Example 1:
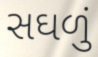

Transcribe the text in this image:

સઘળું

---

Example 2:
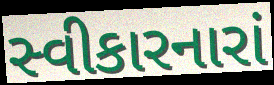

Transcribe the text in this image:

સ્વીકારનારાં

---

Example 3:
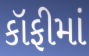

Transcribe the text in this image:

કૉફીમાં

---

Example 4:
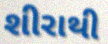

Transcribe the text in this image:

શીરાથી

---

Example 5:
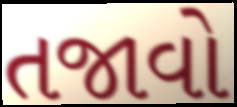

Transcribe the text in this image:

તજાવો